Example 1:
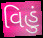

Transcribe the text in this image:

વિહું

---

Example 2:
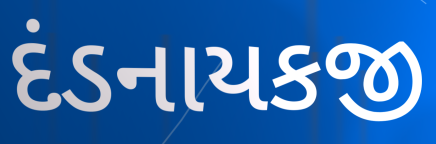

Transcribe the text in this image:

દંડનાયકજી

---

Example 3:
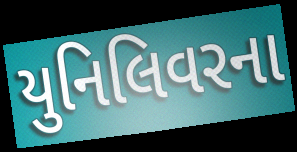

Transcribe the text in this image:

યુનિલિવરના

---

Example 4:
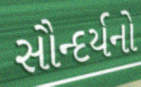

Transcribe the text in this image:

સૌન્દર્યનો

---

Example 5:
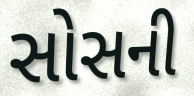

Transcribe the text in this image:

સોસની